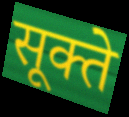
सूक्ते